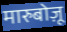
मारुबोज़ू